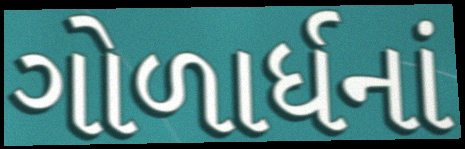
ગોળાર્ધનાં